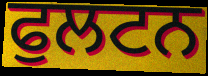
ਫੁਲਟਨ